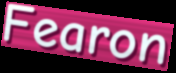
Fearon